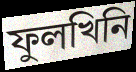
ফুলখিনি